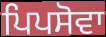
ਪਿਪਸੋਵਾ